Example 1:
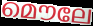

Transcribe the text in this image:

മൌലേ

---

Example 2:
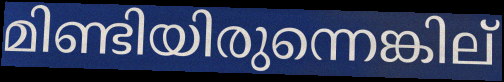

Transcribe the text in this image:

മിണ്ടിയിരുന്നെങ്കില്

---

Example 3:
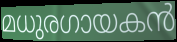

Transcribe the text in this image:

മധുരഗായകൻ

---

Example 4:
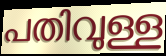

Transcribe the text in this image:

പതിവുള്ള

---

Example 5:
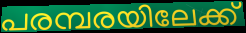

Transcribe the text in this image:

പരമ്പരയിലേക്ക്